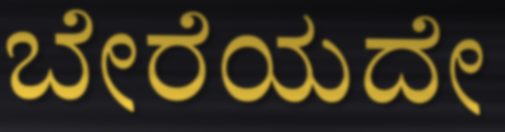
ಬೇರೆಯದೇ